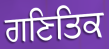
ਗਣਿਤਿਕ